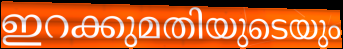
ഇറക്കുമതിയുടെയും